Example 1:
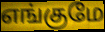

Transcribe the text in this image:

எங்குமே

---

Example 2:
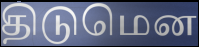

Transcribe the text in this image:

திடுமென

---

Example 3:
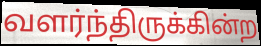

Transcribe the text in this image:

வளர்ந்திருக்கின்ற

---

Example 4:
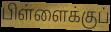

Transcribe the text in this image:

பிள்ளைக்குப்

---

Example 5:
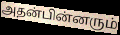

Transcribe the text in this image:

அதன்பின்னரும்